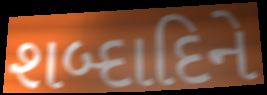
શબ્દાદિને